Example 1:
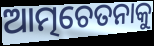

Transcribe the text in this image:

ଆତ୍ମଚେତନାକୁ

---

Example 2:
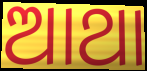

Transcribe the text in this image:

ଆଥା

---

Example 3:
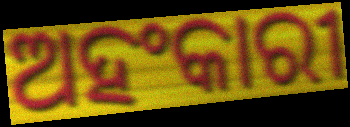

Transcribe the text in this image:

ଅହଂକାରୀ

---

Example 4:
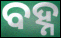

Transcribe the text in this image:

ବହ୍ନ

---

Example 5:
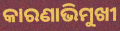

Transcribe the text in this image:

କାରଣାଭିମୁଖୀ